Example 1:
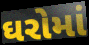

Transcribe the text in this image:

ઘરોમાં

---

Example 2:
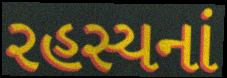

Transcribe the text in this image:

રહસ્યનાં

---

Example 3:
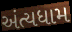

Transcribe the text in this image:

અંત્યધામ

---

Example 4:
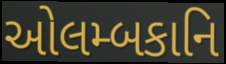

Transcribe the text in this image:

ઓલમ્બકાનિ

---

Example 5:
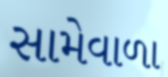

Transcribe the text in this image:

સામેવાળા